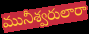
మునీశ్వరులారా